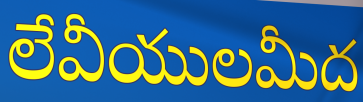
లేవీయులమీద